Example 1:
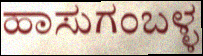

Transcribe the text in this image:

ಹಾಸುಗಂಬಳ್ಳ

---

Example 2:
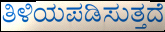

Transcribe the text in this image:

ತಿಳಿಯಪಡಿಸುತ್ತದೆ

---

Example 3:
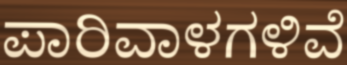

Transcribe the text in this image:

ಪಾರಿವಾಳಗಳಿವೆ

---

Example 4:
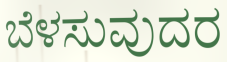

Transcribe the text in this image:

ಬೆಳಸುವುದರ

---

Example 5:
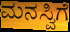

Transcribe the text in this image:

ಮನಸ್ವಿಗೆ